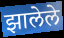
झालेले